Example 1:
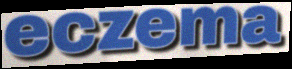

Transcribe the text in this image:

eczema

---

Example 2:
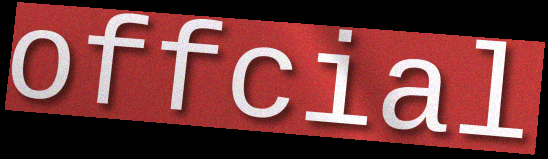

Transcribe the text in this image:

offcial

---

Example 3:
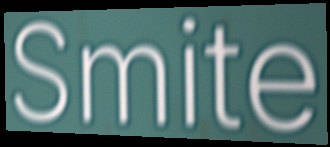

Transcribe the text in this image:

Smite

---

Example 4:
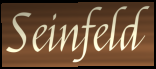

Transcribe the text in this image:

Seinfeld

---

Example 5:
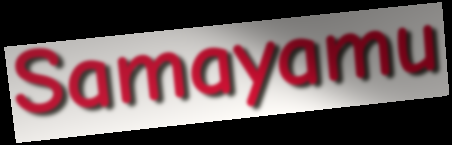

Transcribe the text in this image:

Samayamu